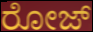
ರೋಜ್